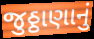
જુઠ્ઠાણાનું